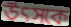
উৎসকে